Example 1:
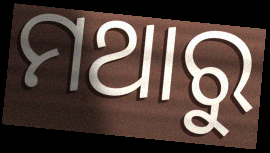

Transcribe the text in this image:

ମଥାରୁ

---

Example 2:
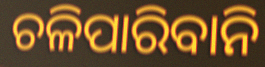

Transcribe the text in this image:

ଚଳିପାରିବାନି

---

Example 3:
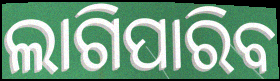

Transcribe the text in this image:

ଲାଗିପାରିବ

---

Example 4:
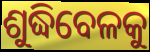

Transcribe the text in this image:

ଶୁଦ୍ଧିବେଳକୁ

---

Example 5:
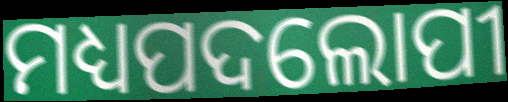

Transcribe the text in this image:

ମଧ୍ଯପଦଲୋପୀ